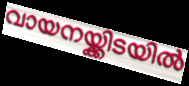
വായനയ്ക്കിടയിൽ